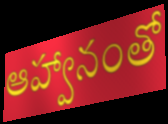
ఆహ్వానంతో